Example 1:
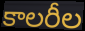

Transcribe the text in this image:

కాలరీల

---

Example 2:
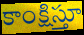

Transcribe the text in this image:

కాంక్షిస్తూ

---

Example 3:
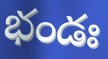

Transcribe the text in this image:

భండః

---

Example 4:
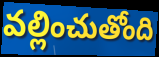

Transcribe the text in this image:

వల్లించుతోంది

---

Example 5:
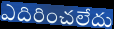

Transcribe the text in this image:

ఎదిరించలేదు